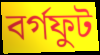
বর্গফুট